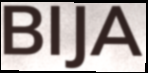
BIJA